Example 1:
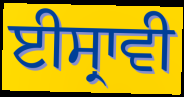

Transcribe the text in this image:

ਈਸ੍ਰਾਵੀ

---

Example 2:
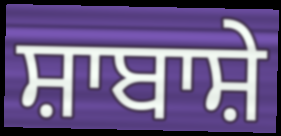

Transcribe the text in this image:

ਸ਼ਾਬਾਸ਼ੇ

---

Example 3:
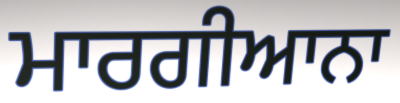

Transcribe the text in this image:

ਮਾਰਗੀਆਨਾ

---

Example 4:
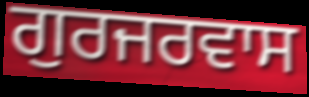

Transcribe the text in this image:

ਗੁਰਜਰਵਾਸ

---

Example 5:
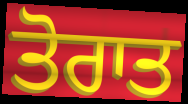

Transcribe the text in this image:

ਤੋਰਾਤ